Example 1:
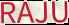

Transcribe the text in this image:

RAJU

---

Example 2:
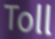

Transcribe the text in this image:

Toll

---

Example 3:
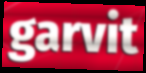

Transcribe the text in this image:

garvit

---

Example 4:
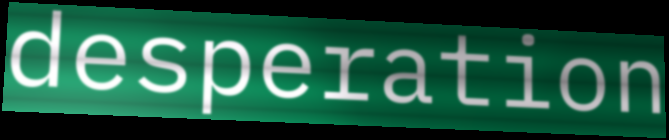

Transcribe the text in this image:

desperation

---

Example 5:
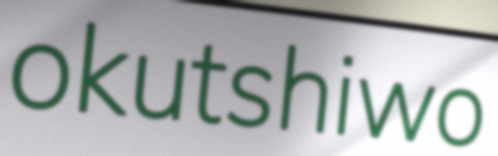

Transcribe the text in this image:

okutshiwo